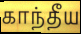
காந்தீய